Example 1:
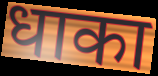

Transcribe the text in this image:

धाका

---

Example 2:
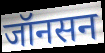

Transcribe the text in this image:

जॉनसन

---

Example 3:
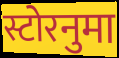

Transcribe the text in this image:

स्टोरनुमा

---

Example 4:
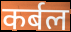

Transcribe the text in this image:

कर्बल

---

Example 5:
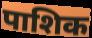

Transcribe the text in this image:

पाशिक